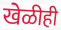
खेळीही